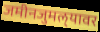
जमीनजुमल्यावर